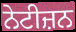
ਨੇਟੀਜ਼ਨ